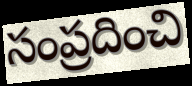
సంప్రదించి